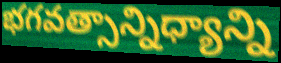
భగవత్సాన్నిధ్యాన్ని